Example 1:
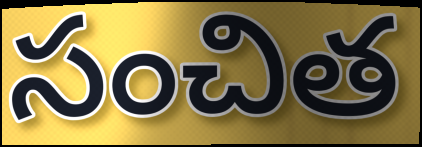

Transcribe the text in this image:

సంచిత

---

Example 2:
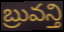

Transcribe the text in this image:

బ్రువన్తి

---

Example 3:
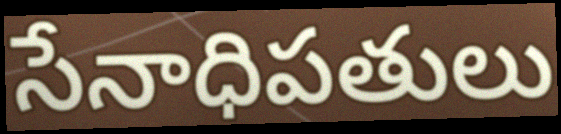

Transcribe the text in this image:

సేనాధిపతులు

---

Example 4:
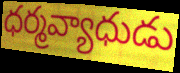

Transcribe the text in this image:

ధర్మవ్యాధుడు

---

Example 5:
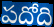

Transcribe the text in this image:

పదోది